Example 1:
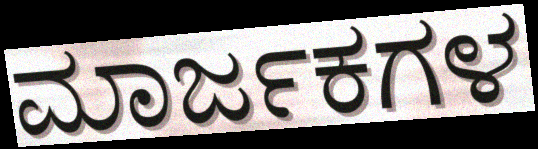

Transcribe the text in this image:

ಮಾರ್ಜಕಗಳ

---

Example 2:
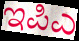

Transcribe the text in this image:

ಇಪಿಎ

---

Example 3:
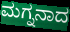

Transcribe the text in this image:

ಮಗ್ನನಾದ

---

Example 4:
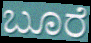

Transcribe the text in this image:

ಬೂರೆ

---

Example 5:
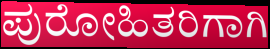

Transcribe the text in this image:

ಪುರೋಹಿತರಿಗಾಗಿ